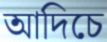
আদিচে